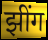
झींग